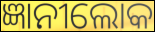
ଜ୍ଞାନୀଲୋକ